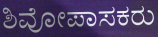
ಶಿವೋಪಾಸಕರು